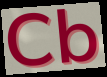
Cb